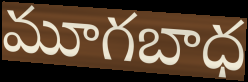
మూగబాధ